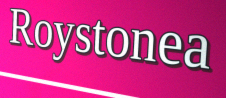
Roystonea